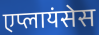
एप्लायंसेस